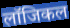
लॉजिकल